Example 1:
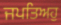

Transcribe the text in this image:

ਜਪਤਿਅਹੁ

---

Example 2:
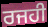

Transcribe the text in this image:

ਰਜਹੀ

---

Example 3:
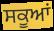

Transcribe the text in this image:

ਸਕੂਆਂ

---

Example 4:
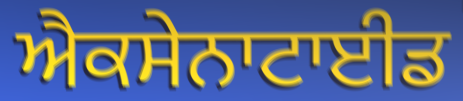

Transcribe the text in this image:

ਐਕਸੇਨਾਟਾਈਡ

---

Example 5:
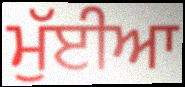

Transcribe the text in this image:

ਮੁੱਈਆ